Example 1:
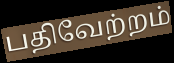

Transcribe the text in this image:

பதிவேற்றம்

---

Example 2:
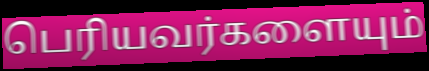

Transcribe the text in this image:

பெரியவர்களையும்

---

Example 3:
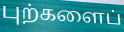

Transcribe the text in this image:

புற்களைப்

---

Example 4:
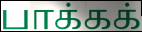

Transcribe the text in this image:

பாக்கக்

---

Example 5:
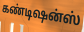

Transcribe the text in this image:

கண்டிஷன்ஸ்